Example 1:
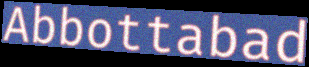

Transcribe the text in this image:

Abbottabad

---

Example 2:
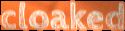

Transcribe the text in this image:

cloaked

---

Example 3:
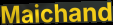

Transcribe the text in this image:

Maichand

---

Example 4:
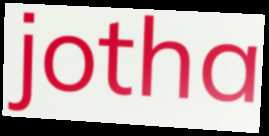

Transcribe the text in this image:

jotha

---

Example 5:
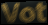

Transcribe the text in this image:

Vot